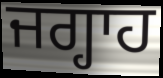
ਜਗ੍ਹਾਹ